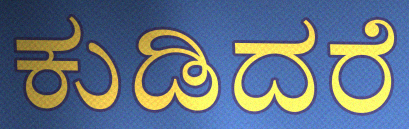
ಕುಡಿದರೆ